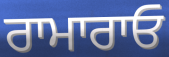
ਰਾਮਾਰਾਓ